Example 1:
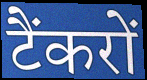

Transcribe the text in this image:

टैंकरों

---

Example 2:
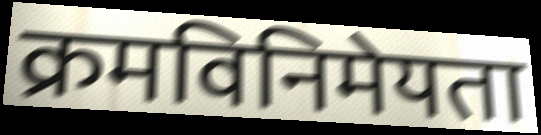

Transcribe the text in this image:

क्रमविनिमेयता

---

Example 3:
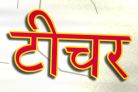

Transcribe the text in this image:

टीचर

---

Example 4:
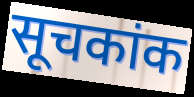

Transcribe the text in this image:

सूचकांक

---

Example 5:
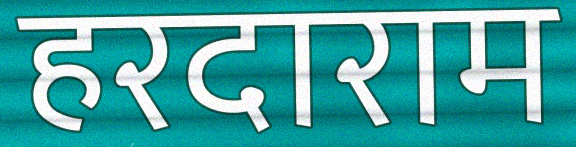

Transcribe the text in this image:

हरदाराम